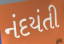
નંદયંતી